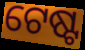
ଟେଷ୍ଟ